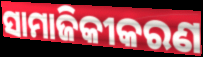
ସାମାଜିକୀକରଣ